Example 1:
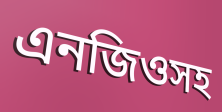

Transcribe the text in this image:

এনজিওসহ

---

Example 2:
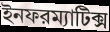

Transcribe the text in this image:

ইনফরম্যাটিক্স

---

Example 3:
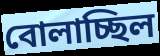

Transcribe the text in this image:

বোলাচ্ছিল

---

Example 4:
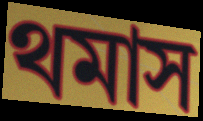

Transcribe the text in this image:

থমাস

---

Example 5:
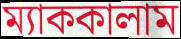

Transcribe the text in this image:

ম্যাককালাম